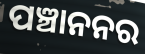
ପଞ୍ଚାନନର